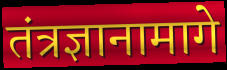
तंत्रज्ञानामागे